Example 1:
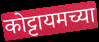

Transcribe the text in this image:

कोट्टायमच्या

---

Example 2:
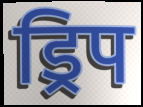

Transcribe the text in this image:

ड्रिप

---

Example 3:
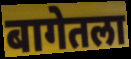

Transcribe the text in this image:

बागेतला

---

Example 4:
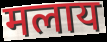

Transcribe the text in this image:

मलाय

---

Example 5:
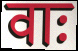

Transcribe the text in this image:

वाः